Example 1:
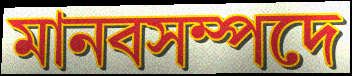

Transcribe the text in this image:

মানবসম্পদে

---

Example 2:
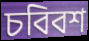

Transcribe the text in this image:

চবিবশ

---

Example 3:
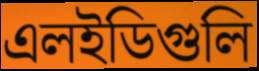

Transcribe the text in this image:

এলইডিগুলি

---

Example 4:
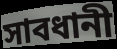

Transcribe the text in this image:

সাবধানী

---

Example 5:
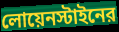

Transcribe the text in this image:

লোয়েনস্টাইনের